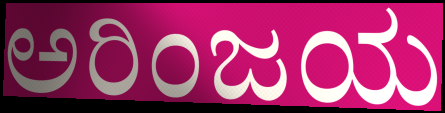
ಅರಿಂಜಯ